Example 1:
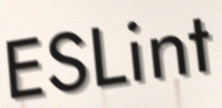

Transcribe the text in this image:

ESLint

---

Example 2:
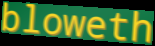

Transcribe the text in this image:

bloweth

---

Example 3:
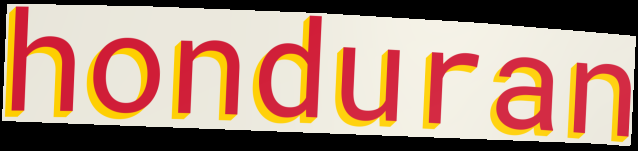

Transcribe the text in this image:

honduran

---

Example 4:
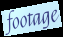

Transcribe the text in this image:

footage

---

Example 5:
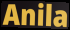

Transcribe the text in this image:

Anila